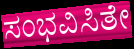
ಸಂಭವಿಸಿತೇ